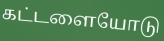
கட்டளையோடு